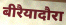
बीरैयादौरा